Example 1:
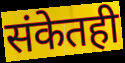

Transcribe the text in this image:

संकेतही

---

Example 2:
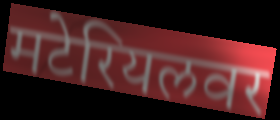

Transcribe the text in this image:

मटेरियलवर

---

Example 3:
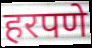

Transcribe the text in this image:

हरपणे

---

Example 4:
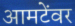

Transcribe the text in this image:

आमटेंवर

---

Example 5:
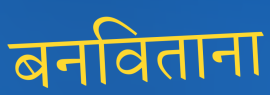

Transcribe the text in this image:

बनविताना